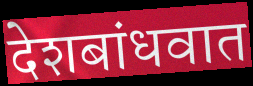
देशबांधवात